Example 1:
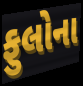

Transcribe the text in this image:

ફુલોના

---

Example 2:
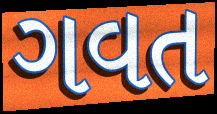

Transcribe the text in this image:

ગવત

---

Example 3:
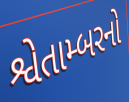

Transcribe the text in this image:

શ્વેતામ્બરનો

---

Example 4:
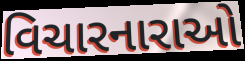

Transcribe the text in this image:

વિચારનારાઓ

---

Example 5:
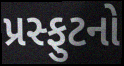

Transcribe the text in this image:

પ્રસ્ફુટનો